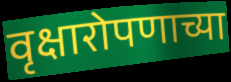
वृक्षारोपणाच्या